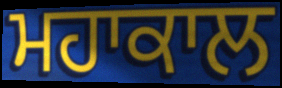
ਮਹਾਕਾਲ